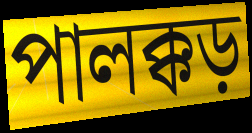
পালক্কড়